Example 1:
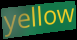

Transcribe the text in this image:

yellow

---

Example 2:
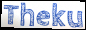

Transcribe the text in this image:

Theku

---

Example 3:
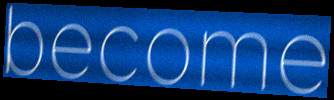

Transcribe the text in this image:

become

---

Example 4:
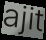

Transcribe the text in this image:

ajit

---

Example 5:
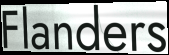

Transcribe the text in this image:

Flanders